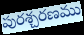
పురశ్చరణము